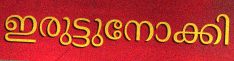
ഇരുട്ടുനോക്കി